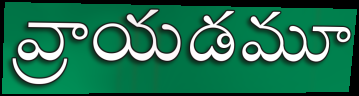
వ్రాయడమూ